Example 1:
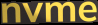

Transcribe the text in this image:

nvme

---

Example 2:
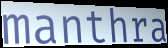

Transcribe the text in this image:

manthra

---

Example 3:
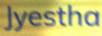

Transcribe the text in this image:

Jyestha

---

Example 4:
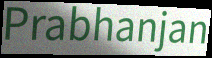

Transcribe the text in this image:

Prabhanjan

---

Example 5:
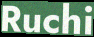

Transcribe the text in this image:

Ruchi